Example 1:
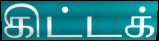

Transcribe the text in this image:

கிட்டக்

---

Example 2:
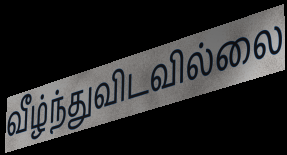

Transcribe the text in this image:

வீழ்ந்துவிடவில்லை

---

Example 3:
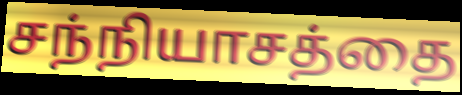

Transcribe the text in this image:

சந்நியாசத்தை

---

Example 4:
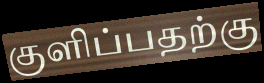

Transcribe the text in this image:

குளிப்பதற்கு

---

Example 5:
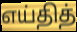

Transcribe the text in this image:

எய்தித்